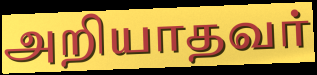
அறியாதவர்